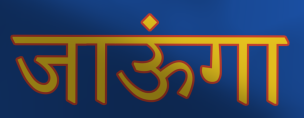
जाऊंगा